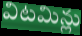
విటమిన్లు